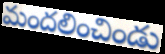
మందలించిండు